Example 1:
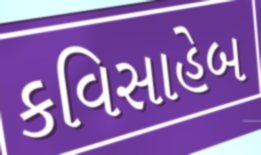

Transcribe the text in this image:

કવિસાહેબ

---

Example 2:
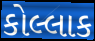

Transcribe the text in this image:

કોલ્લાક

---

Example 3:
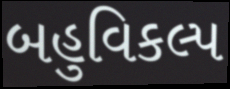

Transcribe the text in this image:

બહુવિકલ્પ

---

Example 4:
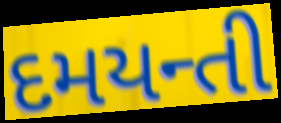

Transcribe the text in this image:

દમયન્તી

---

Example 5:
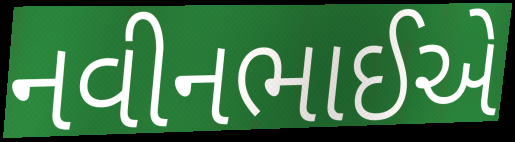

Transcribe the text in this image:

નવીનભાઈએ